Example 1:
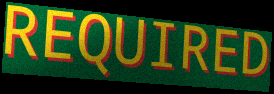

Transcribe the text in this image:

REQUIRED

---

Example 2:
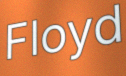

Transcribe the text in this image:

Floyd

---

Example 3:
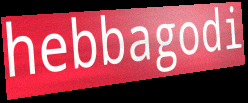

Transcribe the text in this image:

hebbagodi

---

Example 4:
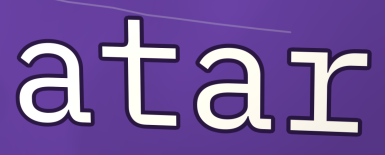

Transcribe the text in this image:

atar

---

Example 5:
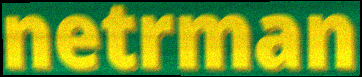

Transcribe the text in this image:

netrman